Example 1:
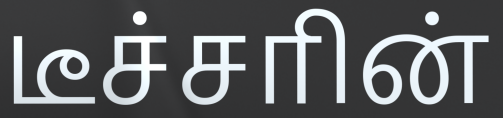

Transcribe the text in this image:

டீச்சரின்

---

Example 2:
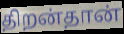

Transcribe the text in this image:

திறன்தான்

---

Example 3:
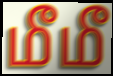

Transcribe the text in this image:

மீமீ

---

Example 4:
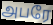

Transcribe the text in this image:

அபரே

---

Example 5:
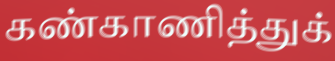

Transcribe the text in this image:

கண்காணித்துக்